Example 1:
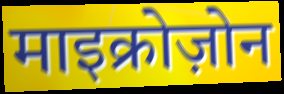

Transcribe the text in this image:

माइक्रोज़ोन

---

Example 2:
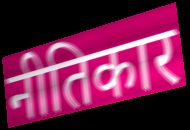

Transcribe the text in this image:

नीतिकार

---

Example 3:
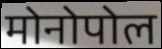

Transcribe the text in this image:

मोनोपोल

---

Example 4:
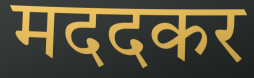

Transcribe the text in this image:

मददकर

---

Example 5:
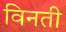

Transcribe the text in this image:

विनती